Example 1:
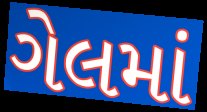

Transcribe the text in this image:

ગેલમાં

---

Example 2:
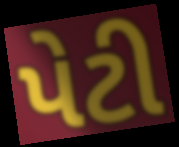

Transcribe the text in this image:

પેટી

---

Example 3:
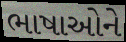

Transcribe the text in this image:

ભાષાઓને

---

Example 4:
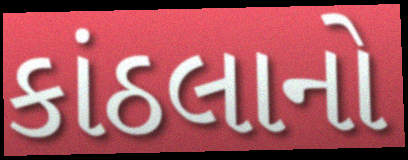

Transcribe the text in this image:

કાંઠલાનો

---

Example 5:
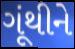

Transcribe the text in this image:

ગૂંથીને